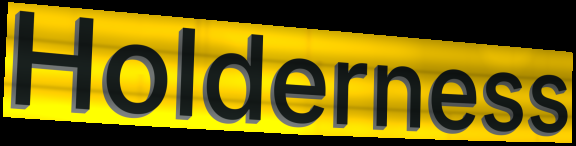
Holderness